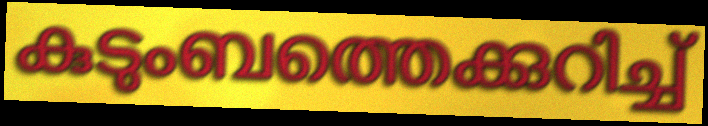
കുടുംബത്തെക്കുറിച്ച്